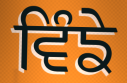
ਵਿੰਙੇ